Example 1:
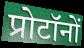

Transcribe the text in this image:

प्रोटॉनों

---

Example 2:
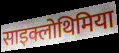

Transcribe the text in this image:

साइक्लोथिमिया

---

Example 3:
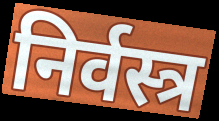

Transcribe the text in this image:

निर्वस्त्र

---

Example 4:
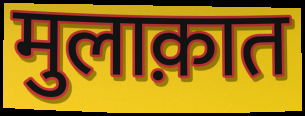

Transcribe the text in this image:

मुलाक़ात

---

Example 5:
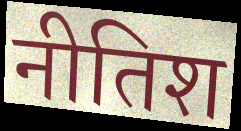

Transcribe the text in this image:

नीतिश